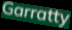
Garratty